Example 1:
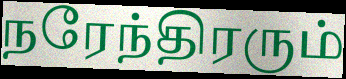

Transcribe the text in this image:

நரேந்திரரும்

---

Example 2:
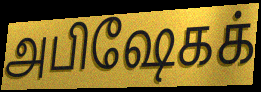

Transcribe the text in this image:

அபிஷேகக்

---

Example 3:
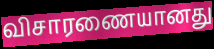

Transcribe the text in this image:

விசாரணையானது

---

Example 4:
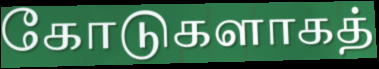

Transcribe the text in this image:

கோடுகளாகத்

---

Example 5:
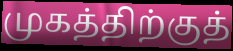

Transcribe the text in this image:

முகத்திற்குத்